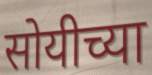
सोयीच्या